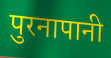
पुरनापानी